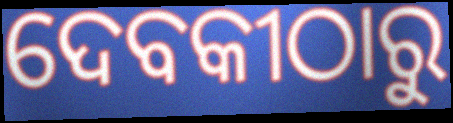
ଦେବକୀଠାରୁ